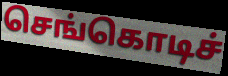
செங்கொடிச்